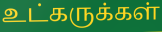
உட்கருக்கள்